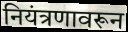
नियंत्रणावरून